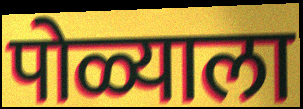
पोळ्याला